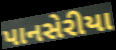
પાનસેરીયા